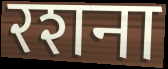
रशना